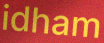
idham